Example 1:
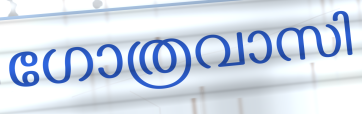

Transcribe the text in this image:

ഗോത്രവാസി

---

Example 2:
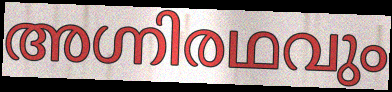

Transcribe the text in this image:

അഗ്നിരഥവും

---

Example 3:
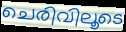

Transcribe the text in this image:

ചെരിവിലൂടെ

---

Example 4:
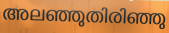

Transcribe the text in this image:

അലഞ്ഞുതിരിഞ്ഞു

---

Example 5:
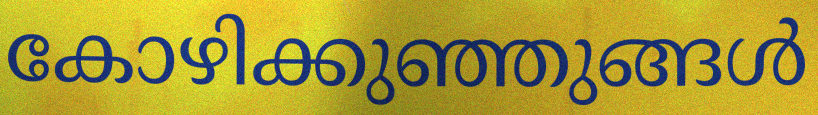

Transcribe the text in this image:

കോഴിക്കുഞ്ഞുങ്ങൾ